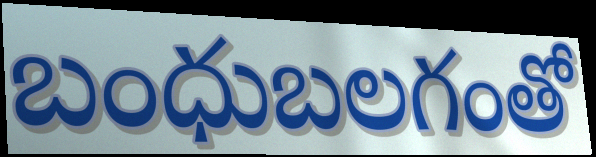
బంధుబలగంతో